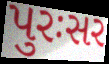
પુરઃસર